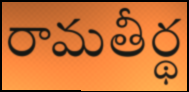
రామతీర్థ